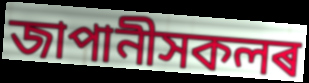
জাপানীসকলৰ